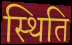
स्थिति